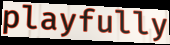
playfully